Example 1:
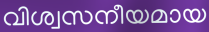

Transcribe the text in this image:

വിശ്വസനീയമായ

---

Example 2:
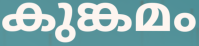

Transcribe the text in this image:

കുങ്കമം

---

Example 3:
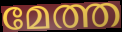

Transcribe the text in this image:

മേത്ത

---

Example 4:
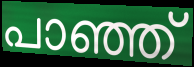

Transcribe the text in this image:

പാഞ്ഞ്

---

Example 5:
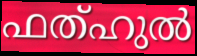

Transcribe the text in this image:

ഫത്ഹുൽ